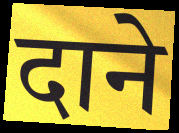
दाने